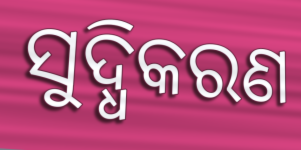
ସୁଦ୍ଧିକରଣ